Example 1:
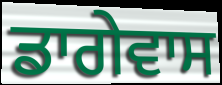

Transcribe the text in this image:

ਡਾਗੇਵਾਸ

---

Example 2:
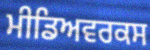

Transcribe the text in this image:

ਮੀਡਿਅਵਰਕਸ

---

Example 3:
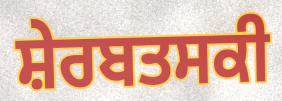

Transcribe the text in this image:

ਸ਼ੇਰਬਤਸਕੀ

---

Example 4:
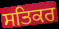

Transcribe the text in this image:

ਸਤਿਕਰ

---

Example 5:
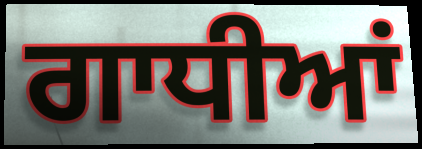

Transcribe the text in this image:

ਗਾਧੀਆਂ